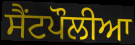
ਸੈਂਟਪੌਲੀਆ